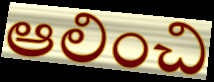
ఆలించి